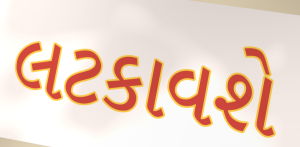
લટકાવશે